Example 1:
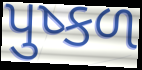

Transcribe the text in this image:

પુષ્કળ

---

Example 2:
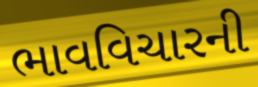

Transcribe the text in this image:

ભાવવિચારની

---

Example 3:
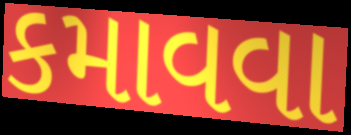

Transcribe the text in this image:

કમાવવા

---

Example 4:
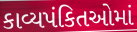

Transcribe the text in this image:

કાવ્યપંકિતઓમાં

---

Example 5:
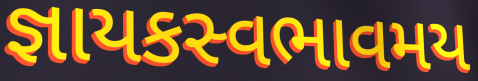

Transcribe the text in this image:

જ્ઞાયકસ્વભાવમય